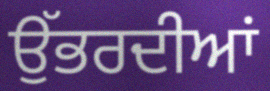
ਉੱਭਰਦੀਆਂ